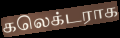
கலெக்டராக